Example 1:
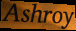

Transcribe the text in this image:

Ashroy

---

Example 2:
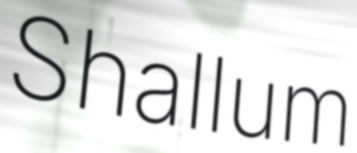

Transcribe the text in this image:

Shallum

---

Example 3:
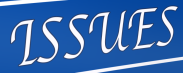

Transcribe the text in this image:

ISSUES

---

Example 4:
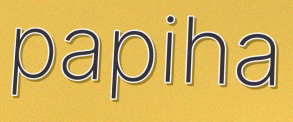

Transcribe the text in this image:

papiha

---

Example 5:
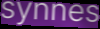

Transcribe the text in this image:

synnes